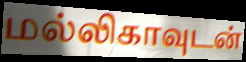
மல்லிகாவுடன்